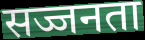
सज्जनता